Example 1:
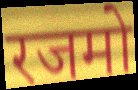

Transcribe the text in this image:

रजमो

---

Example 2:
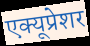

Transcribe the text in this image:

एक्यूप्रेशर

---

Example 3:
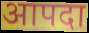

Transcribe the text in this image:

आपदा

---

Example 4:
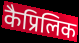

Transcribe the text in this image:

कैप्रिलिक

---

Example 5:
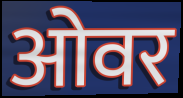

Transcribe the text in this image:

ओवर